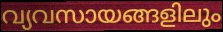
വ്യവസായങ്ങളിലും